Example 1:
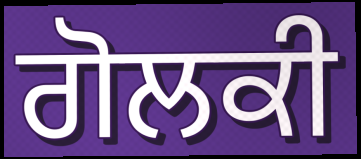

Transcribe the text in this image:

ਗੋਲਕੀ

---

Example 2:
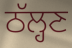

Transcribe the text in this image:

ਠੱਲ੍ਹਣ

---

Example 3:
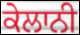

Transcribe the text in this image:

ਕੇਲਾਨੀ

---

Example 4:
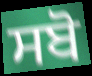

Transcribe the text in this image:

ਸਬੋ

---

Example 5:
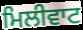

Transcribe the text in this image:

ਮਿਲੀਵਾਟ